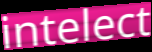
intelect